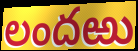
లందఱు